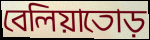
বেলিয়াতোড়